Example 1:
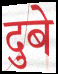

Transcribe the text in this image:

दुबे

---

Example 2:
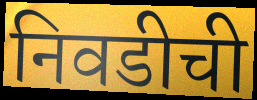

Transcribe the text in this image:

निवडीची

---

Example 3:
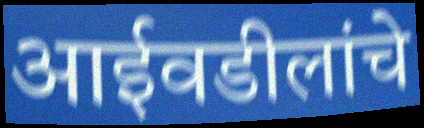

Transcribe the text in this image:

आईवडीलांचे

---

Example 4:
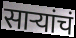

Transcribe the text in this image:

साऱ्यांचं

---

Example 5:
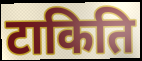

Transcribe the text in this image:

टाकिति